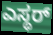
ಎಸ್ಥರ್